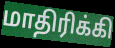
மாதிரிக்கி